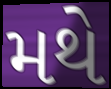
મથે